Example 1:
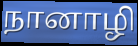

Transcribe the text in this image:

நானாழி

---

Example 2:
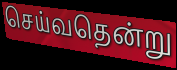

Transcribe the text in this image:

செய்வதென்று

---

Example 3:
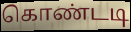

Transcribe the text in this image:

கொண்டடி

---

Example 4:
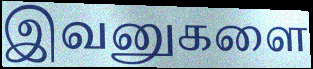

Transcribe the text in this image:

இவனுகளை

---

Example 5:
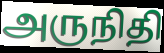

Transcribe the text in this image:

அருநிதி